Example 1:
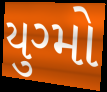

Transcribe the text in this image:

યુગ્મો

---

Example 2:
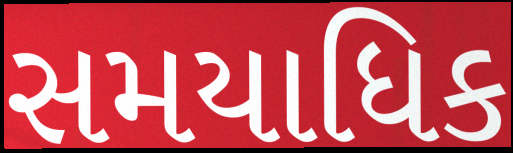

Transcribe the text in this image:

સમયાધિક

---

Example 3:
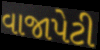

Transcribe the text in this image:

વાજાપેટી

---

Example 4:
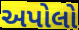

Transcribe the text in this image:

અપોલો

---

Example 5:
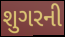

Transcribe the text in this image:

શુગરની